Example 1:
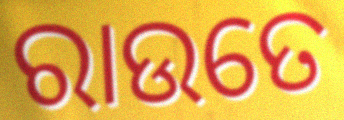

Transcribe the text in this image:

ରାଉତେ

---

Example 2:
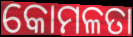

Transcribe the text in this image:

କୋମଳତା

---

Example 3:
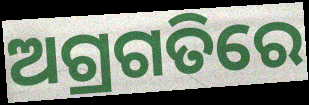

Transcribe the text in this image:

ଅଗ୍ରଗତିରେ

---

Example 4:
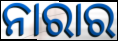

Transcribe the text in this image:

ନାରାର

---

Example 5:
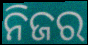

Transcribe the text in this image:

ନିଜର